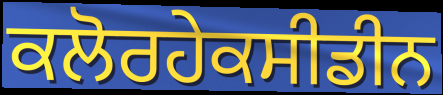
ਕਲੋਰਹੇਕਸੀਡੀਨ